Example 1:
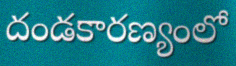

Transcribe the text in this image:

దండకారణ్యంలో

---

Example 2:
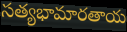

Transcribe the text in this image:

సత్యభామారతాయ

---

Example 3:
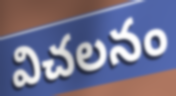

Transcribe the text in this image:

విచలనం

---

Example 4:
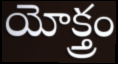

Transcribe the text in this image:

యోక్త్రం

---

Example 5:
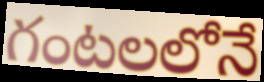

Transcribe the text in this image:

గంటలలోనే